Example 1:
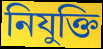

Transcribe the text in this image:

নিযুক্তি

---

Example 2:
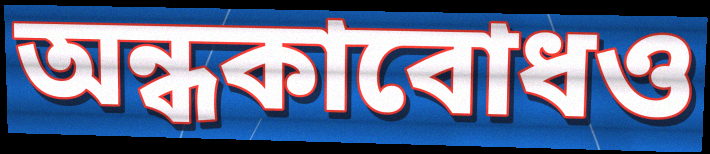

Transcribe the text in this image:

অন্ধকাবোধও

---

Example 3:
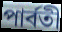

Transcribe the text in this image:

পার্বতী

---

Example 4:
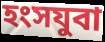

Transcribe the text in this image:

হংসযুবা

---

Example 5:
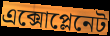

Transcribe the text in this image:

এক্সোপ্লেনেট